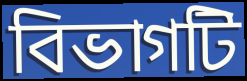
বিভাগটি